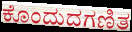
ಕೊಂದುದಗಣಿತ